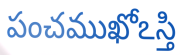
పంచముఖోఽస్తి